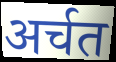
अर्चत